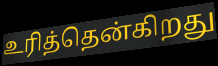
உரித்தென்கிறது